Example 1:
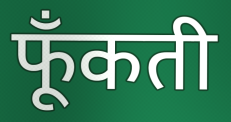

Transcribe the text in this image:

फूँकती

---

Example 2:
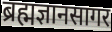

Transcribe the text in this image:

ब्रह्मज्ञानसागर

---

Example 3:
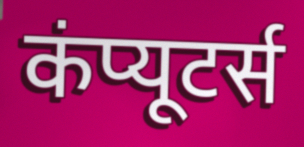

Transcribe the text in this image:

कंप्यूटर्स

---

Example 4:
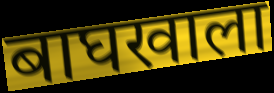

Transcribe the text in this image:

बाघखाला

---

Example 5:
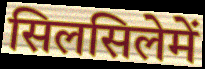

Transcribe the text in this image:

सिलसिलेमें